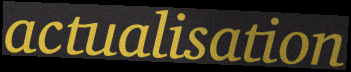
actualisation